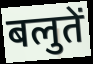
बलुतें